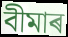
বীমাৰ